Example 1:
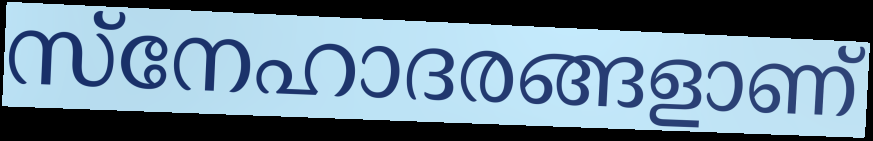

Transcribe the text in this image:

സ്നേഹാദരങ്ങളാണ്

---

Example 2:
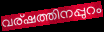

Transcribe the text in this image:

വര്ഷത്തിനപ്പുറം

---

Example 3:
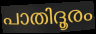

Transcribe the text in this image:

പാതിദൂരം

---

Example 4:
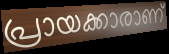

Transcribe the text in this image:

പ്രായക്കാരാണ്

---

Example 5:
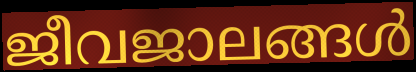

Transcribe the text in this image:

ജീവജാലങ്ങൾ